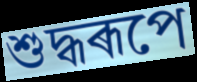
শুদ্ধৰূপে